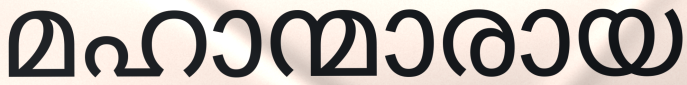
മഹാന്മാരായ